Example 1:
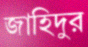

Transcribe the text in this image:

জাহিদুর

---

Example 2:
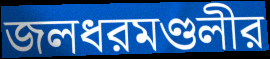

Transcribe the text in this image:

জলধরমণ্ডলীর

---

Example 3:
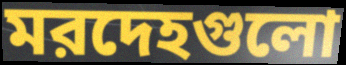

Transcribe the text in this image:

মরদেহগুলো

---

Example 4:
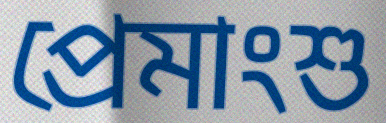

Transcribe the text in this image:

প্রেমাংশু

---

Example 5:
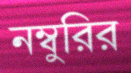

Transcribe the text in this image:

নম্বুরির